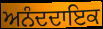
ਅਨੰਦਦਾਇਕ